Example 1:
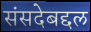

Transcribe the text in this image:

संसदेबद्दल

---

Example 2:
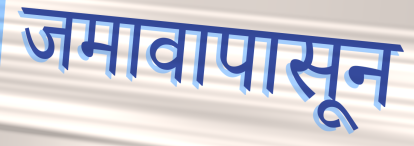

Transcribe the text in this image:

जमावापासून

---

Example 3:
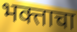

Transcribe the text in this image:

भक्ताचा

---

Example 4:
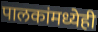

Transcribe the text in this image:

पालकांमध्येही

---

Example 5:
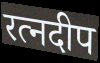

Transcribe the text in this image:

रत्नदीप